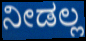
ನೀಡಲ್ಲ